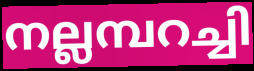
നല്ലമ്പറച്ചി